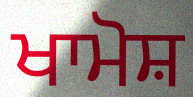
ਖਾਮੋਸ਼